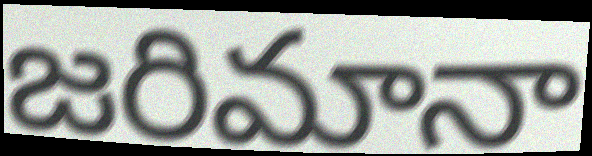
జరిమానా